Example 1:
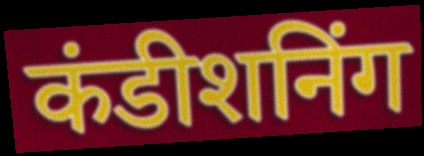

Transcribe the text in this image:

कंडीशनिंग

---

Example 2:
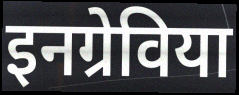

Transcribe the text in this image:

इनग्रेविया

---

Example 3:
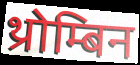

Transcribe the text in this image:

थ्रोम्बिन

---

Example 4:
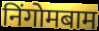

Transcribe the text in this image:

निंगोमबाम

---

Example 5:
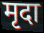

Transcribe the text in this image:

मृदा